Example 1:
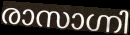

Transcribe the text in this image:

രാസാഗ്നി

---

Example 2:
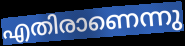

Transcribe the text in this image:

എതിരാണെന്നു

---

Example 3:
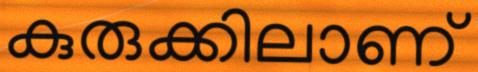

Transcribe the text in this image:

കുരുക്കിലാണ്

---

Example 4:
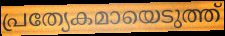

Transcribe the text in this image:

പ്രത്യേകമായെടുത്ത്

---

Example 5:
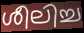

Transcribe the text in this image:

ശീലിച്ച